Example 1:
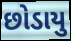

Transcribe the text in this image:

છોડાયુ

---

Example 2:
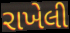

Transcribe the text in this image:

રાખેલી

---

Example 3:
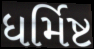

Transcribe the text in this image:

ધર્મિષ્ટ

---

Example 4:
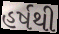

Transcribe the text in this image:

હર્ષથી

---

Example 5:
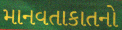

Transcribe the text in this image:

માનવતાકાતનો